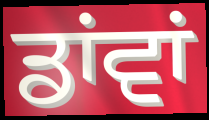
ਡਾਂਵਾਂ